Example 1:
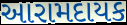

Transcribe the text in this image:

આરામદાયક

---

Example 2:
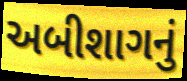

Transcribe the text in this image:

અબીશાગનું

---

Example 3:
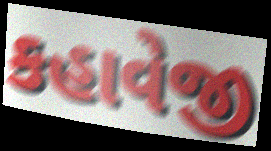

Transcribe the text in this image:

કહાવેજી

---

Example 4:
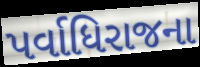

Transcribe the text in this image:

પર્વાધિરાજના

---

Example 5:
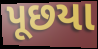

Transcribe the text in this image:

પૂછયા